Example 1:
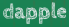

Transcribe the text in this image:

dapple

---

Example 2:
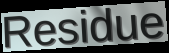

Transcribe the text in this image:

Residue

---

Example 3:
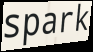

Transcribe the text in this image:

spark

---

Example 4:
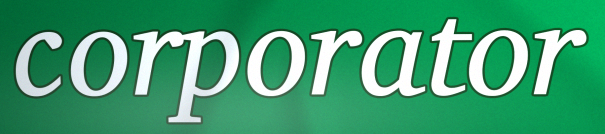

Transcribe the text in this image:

corporator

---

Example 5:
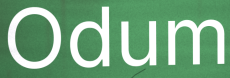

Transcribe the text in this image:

Odum